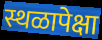
स्थळापेक्षा